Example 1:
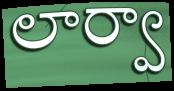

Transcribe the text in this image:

లార్వా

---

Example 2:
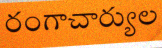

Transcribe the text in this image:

రంగాచార్యుల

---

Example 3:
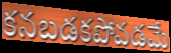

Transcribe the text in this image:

కనబడకపోవడమే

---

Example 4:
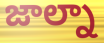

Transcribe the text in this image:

జాల్నా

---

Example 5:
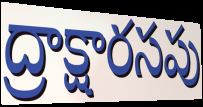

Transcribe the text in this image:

ద్రాక్షారసపు